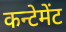
कन्टेमेंट